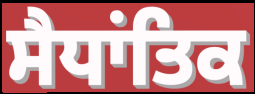
ਸੈਧਾਂਤਿਕ